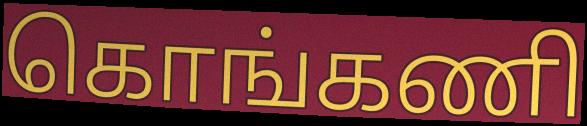
கொங்கணி